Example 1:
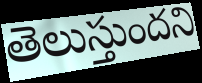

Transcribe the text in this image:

తెలుస్తుందని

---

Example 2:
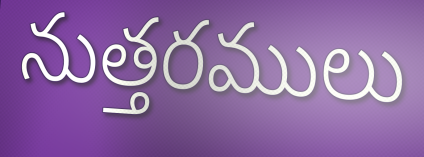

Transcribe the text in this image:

నుత్తరములు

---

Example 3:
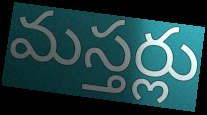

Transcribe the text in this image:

మస్తర్లు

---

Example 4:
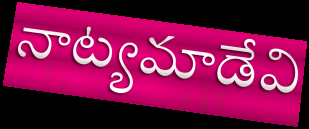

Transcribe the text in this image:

నాట్యమాడేవి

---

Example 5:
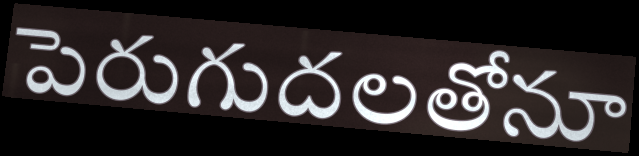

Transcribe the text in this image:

పెరుగుదలతోనూ